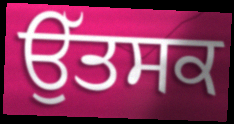
ਉੱਤਸਕ